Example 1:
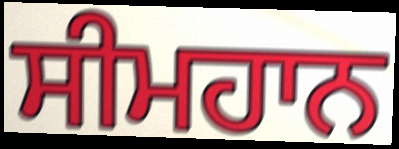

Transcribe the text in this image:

ਸੀਮਹਾਨ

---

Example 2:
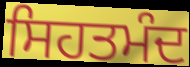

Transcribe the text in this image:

ਸਿਹਤਮੰਦ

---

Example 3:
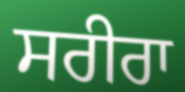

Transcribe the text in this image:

ਸਰੀਰਾ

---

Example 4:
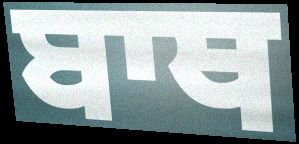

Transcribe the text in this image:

ਬਾਥ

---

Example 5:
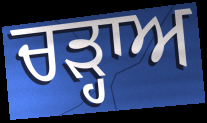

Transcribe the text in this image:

ਚੜ੍ਹਾਅ